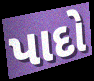
પાદો